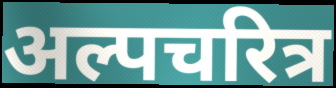
अल्पचरित्र